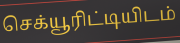
செக்யூரிட்டியிடம்